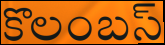
కొలంబస్